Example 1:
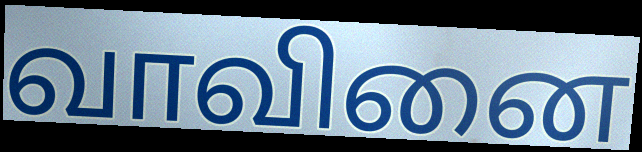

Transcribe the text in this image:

வாவினை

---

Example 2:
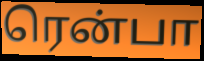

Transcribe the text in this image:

ரென்பா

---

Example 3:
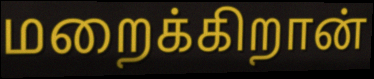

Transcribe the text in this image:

மறைக்கிறான்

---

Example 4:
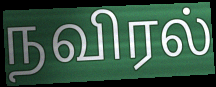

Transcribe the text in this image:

நவிரல்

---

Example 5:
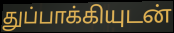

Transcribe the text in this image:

துப்பாக்கியுடன்